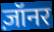
ज़ॉनर